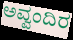
ಅವ್ವಂದಿರ